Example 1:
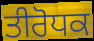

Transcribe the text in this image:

ਤੀਰੋਧਕ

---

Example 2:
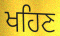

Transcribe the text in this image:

ਖਹਿਣ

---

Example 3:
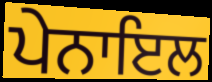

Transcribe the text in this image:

ਪੇਨਾਇਲ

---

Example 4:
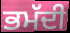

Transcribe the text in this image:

ਭਮੱਦੀ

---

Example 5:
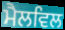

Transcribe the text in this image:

ਮੈਲਵਿਲ